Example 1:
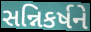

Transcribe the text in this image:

સન્નિકર્ષને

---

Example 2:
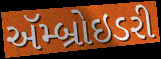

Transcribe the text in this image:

ઍમ્બ્રોઇડરી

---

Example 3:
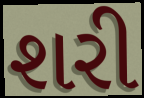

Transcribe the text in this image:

શરી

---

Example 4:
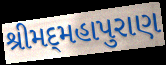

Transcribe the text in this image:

શ્રીમદ્‌મહાપુરાણ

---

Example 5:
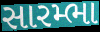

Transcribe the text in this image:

સારમ્ભા